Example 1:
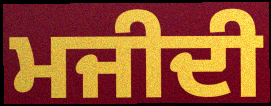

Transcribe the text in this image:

ਮਜੀਦੀ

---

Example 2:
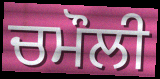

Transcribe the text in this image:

ਚਮੌਲੀ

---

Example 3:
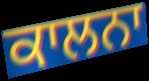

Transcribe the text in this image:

ਕਾਲਨਾ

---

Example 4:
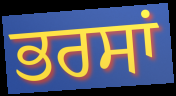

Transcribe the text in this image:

ਭਰਸਾਂ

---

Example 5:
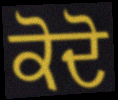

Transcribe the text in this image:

ਕੋਦੋ